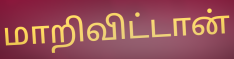
மாறிவிட்டான்